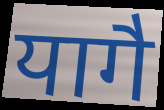
यागै